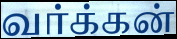
வர்க்கன்